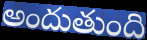
అందుతుంది